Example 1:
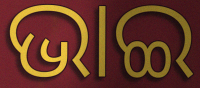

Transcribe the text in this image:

ଭାଇ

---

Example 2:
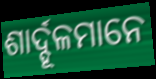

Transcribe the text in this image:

ଶାର୍ଦ୍ଦୂଳମାନେ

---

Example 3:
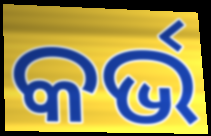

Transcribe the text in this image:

କର୍ଭ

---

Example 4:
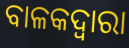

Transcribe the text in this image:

ବାଳକଦ୍ୱାରା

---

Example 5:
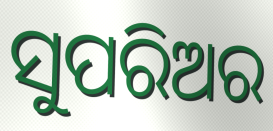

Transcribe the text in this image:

ସୁପରିଅର